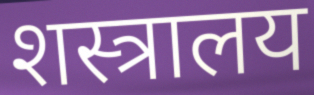
शस्त्रालय